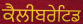
ਕੈਲੀਬਰੇਟਿਡ